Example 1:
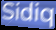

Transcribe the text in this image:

Sidiq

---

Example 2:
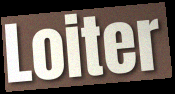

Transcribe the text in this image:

Loiter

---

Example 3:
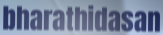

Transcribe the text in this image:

bharathidasan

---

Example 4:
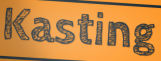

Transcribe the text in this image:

Kasting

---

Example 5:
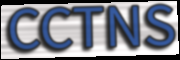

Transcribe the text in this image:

CCTNS